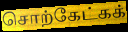
சொற்கேட்கக்